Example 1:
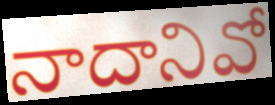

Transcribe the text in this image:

నాదానివో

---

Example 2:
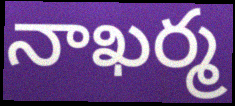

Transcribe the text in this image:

నాఖర్మ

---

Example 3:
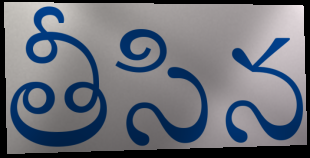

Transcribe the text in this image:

తీసిన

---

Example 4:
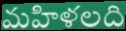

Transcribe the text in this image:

మహిళలది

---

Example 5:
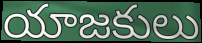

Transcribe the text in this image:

యాజకులు